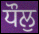
ਧੌਲੁ